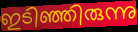
ഇടിഞ്ഞിരുന്നു